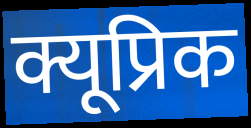
क्यूप्रिक